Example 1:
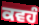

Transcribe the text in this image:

ਕਵਹੰ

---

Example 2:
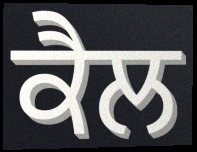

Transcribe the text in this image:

ਕੈਲ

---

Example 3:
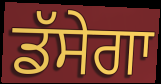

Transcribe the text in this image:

ਡੱਸੇਗਾ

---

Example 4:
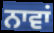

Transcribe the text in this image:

ਨਾਵਾਂ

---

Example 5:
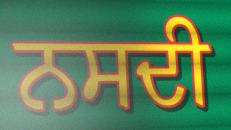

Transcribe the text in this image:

ਨਸਦੀ